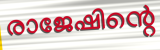
രാജേഷിന്റെ